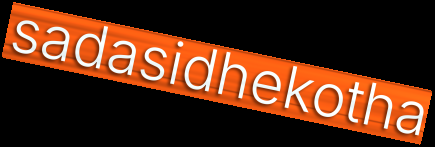
sadasidhekotha